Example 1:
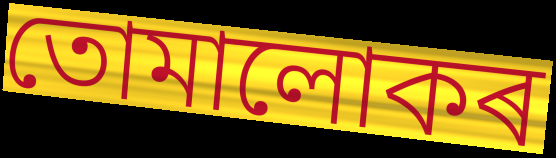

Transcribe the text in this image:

তোমালোকৰ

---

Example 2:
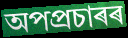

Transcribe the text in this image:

অপপ্ৰচাৰৰ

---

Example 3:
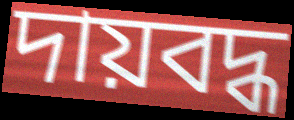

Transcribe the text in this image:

দায়বদ্ধ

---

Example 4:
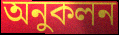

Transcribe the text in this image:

অনুকলন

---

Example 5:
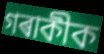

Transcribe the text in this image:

গৰাকীক